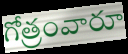
గోత్రంవారూ